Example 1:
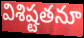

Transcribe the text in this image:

విశిష్టతనూ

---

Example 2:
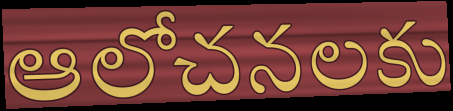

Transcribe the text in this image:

ఆలోచనలకు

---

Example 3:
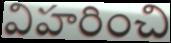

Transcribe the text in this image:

విహరించి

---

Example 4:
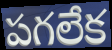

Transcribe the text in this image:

పగలేక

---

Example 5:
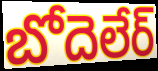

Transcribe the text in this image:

బోదెలేర్